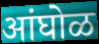
आंघोळ